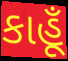
કાહૂઁ